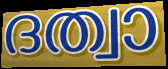
ദത്വാ